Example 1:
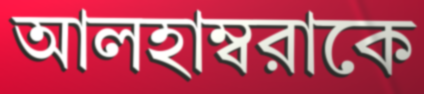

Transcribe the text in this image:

আলহাম্বরাকে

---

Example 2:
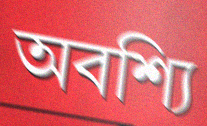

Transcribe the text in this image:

অবশ্যি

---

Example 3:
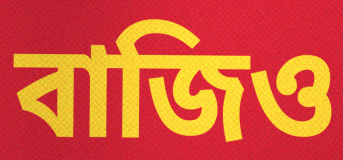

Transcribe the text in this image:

বাজিও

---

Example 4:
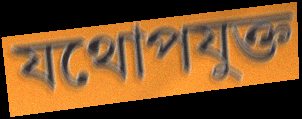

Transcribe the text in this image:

যথোপযুক্ত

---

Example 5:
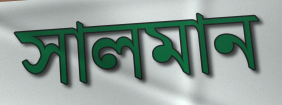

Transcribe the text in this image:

সালমান